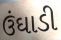
ઉંઘાડી